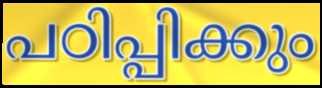
പഠിപ്പിക്കും